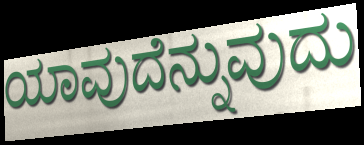
ಯಾವುದೆನ್ನುವುದು